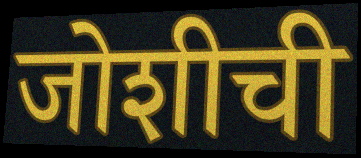
जोशीची